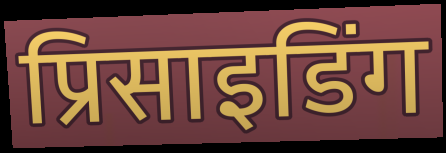
प्रिसाइडिंग